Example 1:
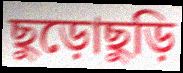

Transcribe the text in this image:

ছুড়োছুড়ি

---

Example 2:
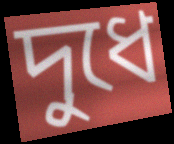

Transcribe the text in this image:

দুধে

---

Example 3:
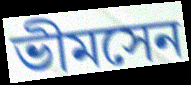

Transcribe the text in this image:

ভীমসেন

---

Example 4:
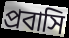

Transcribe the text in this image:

প্রবাসি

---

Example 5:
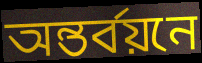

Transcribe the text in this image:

অন্তর্বয়নে